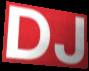
DJ